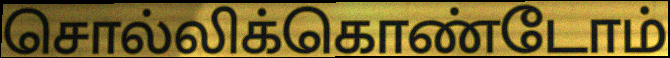
சொல்லிக்கொண்டோம்